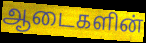
ஆடைகளின்